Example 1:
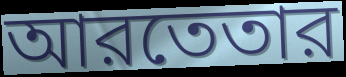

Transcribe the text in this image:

আরতেতার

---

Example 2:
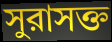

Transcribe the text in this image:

সুরাসক্ত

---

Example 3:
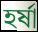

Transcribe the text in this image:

হর্ষা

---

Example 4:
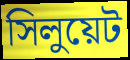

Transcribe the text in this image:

সিলুয়েট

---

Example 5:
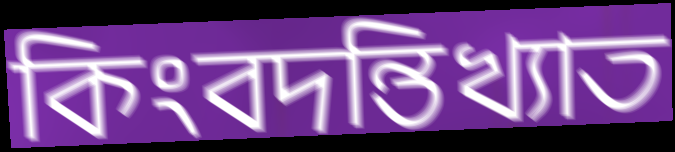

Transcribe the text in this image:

কিংবদন্তিখ্যাত